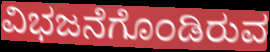
ವಿಭಜನೆಗೊಂಡಿರುವ